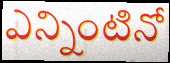
ఎన్నింటినో